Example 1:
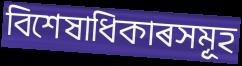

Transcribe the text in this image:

বিশেষাধিকাৰসমূহ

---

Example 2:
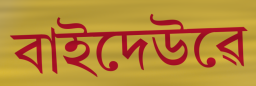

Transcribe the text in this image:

বাইদেউৱে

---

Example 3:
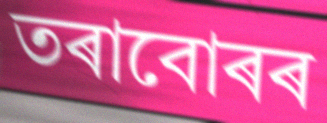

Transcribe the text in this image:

তৰাবোৰৰ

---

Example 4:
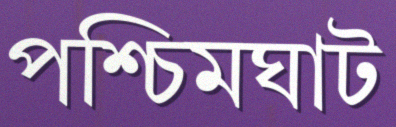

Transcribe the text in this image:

পশ্চিমঘাট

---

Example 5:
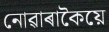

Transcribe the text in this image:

নোৱাৰাকৈয়ে